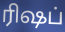
ரிஷப்